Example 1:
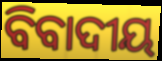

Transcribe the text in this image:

ବିବାଦୀୟ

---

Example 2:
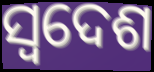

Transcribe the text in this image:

ସ୍ୱଦେଶ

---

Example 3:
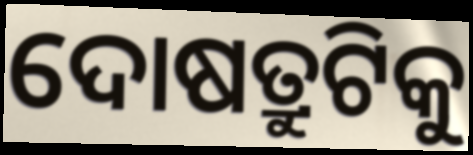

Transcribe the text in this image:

ଦୋଷତ୍ରୁଟିକୁ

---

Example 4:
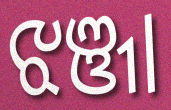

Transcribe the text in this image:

ଝଞ୍ଜା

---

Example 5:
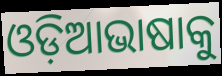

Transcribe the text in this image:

ଓଡ଼ିଆଭାଷାକୁ